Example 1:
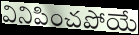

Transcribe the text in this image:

వినిపించపోయే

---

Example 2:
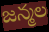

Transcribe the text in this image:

జన్మల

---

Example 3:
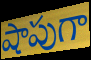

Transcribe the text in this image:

షాపుగా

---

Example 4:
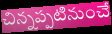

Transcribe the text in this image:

చిన్నప్పటినుంచే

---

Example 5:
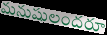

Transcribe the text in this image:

మనుషులందరూ